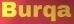
Burqa